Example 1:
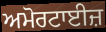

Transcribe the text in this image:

ਅਮੋਰਟਾਈਜ਼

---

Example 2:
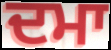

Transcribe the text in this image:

ਦਮਾ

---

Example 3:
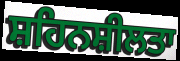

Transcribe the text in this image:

ਸ਼ਹਿਨਸ਼ੀਲਤਾ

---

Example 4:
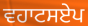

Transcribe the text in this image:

ਵਹਾਟਸਏਪ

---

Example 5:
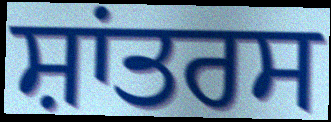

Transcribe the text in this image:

ਸ਼ਾਂਤਰਸ